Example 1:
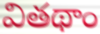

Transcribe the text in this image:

వితథాం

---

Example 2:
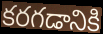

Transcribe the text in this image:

కరగడానికి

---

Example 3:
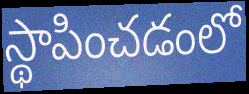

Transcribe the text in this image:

స్థాపించడంలో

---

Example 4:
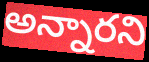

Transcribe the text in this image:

అన్నారని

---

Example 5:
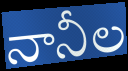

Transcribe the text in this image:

నానీల